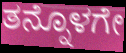
ತನ್ನೊಳಗೇ